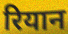
रियान